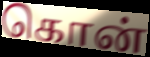
கொன்